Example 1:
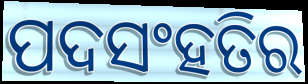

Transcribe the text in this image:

ପଦସଂହତିର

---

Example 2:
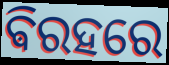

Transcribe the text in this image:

ଵିରହରେ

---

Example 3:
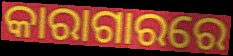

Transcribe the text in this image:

କାରାଗାରରେ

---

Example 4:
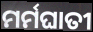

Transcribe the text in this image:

ମର୍ମଘାତୀ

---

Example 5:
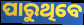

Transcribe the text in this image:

ପାରୁଥିବେ